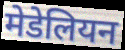
मेडेलियन